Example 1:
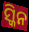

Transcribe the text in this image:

ସ୍କିନ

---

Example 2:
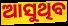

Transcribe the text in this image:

ଆସୁଥିବ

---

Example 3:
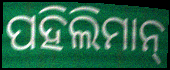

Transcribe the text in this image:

ପହିଲିମାନ୍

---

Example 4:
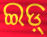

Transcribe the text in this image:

ଇଡ଼୍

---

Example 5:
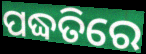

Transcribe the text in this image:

ପଦ୍ଧତିରେ